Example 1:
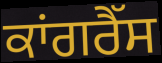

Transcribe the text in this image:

ਕਾਂਗਰੈੱਸ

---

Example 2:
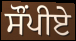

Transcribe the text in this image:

ਸੌਂਪੀਏ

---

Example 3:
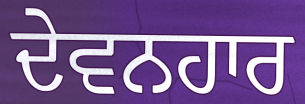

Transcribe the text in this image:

ਦੇਵਨਹਾਰ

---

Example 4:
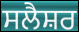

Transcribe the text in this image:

ਸਲੈਸ਼ਰ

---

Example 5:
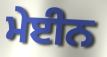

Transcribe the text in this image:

ਮੇਈਨ